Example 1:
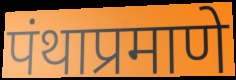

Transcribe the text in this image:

पंथाप्रमाणे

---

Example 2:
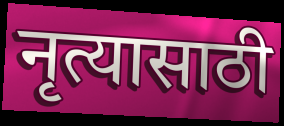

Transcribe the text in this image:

नृत्यासाठी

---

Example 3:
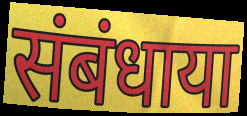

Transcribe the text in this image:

संबंधाया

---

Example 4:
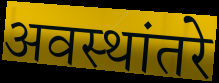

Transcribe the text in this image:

अवस्थांतरे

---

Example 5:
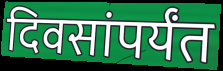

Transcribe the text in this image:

दिवसांपर्यंत